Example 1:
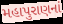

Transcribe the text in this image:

મહાપુરાણનાં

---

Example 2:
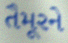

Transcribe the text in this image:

તૈમૂરને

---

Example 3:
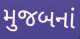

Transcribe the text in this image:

મુજબનાં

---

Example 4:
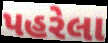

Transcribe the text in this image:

પહરેલા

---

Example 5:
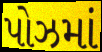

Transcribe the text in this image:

પોઝમાં